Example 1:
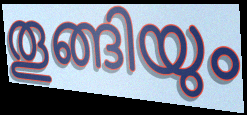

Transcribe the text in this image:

തൂങ്ങിയും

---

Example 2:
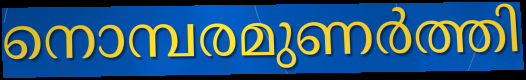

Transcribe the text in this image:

നൊമ്പരമുണർത്തി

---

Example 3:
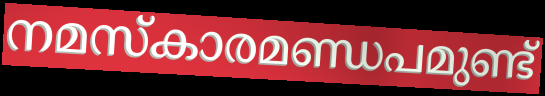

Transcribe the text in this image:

നമസ്കാരമണ്ഡപമുണ്ട്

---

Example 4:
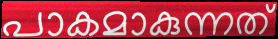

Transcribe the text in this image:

പാകമാകുന്നത്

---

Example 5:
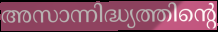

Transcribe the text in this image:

അസാന്നിദ്ധ്യത്തിന്റെ